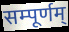
सम्पूर्णम्